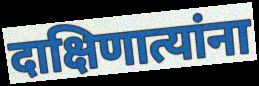
दाक्षिणात्यांना